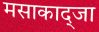
मसाकाद्जा